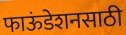
फाऊंडेशनसाठी